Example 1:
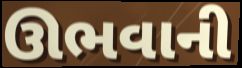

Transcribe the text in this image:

ઊભવાની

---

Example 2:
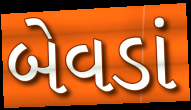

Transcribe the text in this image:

બેવડાં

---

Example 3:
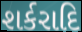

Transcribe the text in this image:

શર્કરાદિ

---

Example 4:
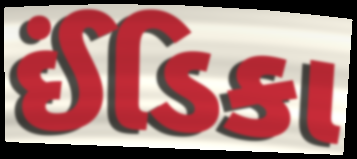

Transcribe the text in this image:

ઈંડિકા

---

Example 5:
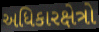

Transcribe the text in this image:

અધિકારક્ષેત્રો